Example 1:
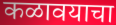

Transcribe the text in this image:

कळावयाचा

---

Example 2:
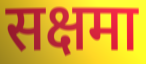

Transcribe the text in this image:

सक्षमा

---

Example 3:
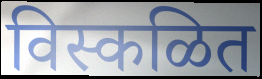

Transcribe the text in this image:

विस्कळित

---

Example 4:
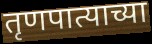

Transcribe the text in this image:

तृणपात्याच्या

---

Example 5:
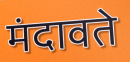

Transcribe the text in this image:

मंदावते